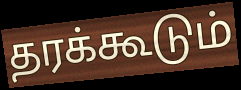
தரக்கூடும்